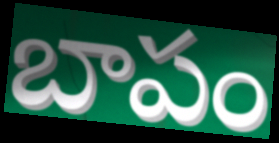
బాపం